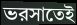
ভরসাতেই